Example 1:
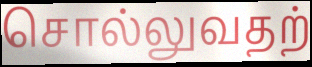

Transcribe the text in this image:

சொல்லுவதற்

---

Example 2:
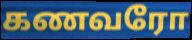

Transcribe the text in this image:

கணவரோ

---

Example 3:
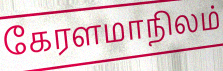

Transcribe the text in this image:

கேரளமாநிலம்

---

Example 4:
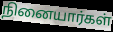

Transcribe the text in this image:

நினையார்கள்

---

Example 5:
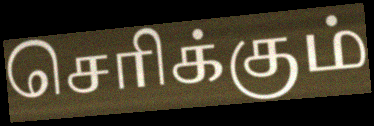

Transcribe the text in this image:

செரிக்கும்